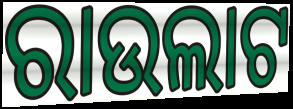
ରାଉଲାଟ